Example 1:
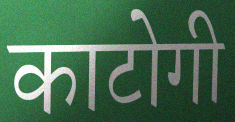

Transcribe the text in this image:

काटोगी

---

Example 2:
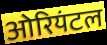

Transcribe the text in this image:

ओरियंटल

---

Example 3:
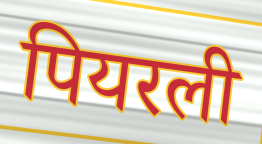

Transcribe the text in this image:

पियरली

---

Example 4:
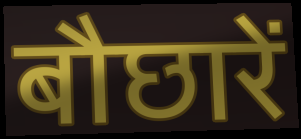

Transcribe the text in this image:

बौछारें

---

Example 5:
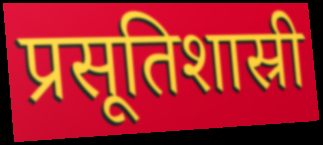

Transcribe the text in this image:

प्रसूतिशास्री